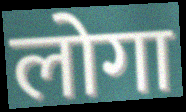
लोगा